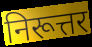
निरूत्तर